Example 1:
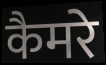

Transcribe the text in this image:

कैमरे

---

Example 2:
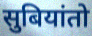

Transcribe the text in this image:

सुबियांतो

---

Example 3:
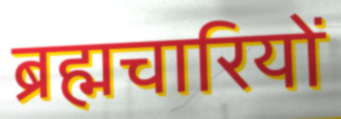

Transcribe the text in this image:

ब्रह्मचारियों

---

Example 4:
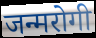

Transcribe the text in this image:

जन्मरोगी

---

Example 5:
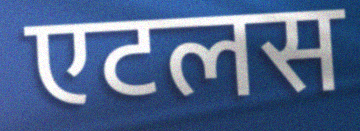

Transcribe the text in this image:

एटलस